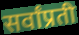
सर्वांप्रती